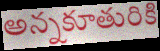
అన్నకూతురికి